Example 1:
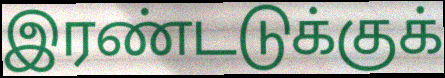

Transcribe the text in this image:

இரண்டடுக்குக்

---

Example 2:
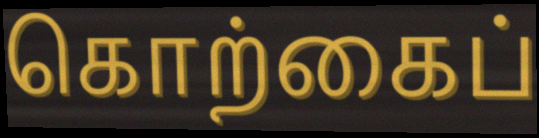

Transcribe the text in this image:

கொற்கைப்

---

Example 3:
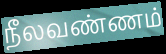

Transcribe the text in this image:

நீலவண்ணம்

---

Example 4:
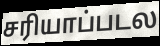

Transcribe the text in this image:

சரியாப்படல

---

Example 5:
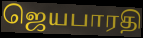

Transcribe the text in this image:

ஜெயபாரதி